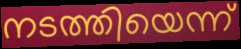
നടത്തിയെന്ന്